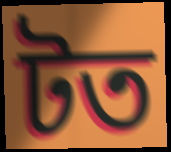
টত